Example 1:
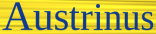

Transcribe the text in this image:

Austrinus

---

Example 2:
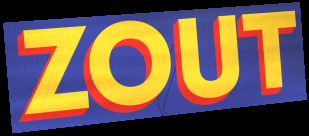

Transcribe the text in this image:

ZOUT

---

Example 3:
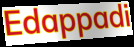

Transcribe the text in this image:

Edappadi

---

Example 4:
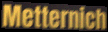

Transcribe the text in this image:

Metternich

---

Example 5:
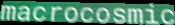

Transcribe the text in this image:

macrocosmic